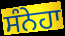
ਸੰਨੇਹਾ